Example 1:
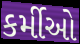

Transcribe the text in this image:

કર્મીઓ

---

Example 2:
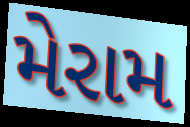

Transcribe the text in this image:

મેરામ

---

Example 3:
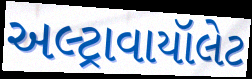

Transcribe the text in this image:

અલ્ટ્રાવાયૉલેટ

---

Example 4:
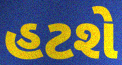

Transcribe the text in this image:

હટશે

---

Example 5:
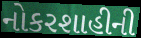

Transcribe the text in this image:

નોકરશાહીની